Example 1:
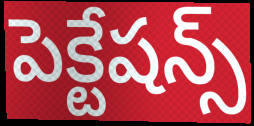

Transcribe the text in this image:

పెక్టేషన్స్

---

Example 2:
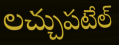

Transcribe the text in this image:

లచ్చుపటేల్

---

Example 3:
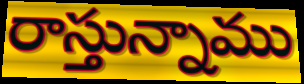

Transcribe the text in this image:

రాస్తున్నాము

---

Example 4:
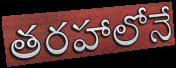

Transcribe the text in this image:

తరహాలోనే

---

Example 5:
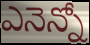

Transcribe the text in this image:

ఎనెన్నో